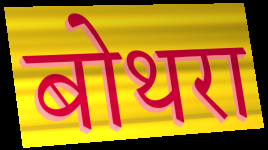
बोथरा